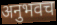
अनुभवच